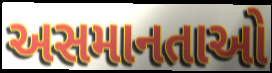
અસમાનતાઓ